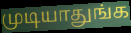
முடியாதுங்க